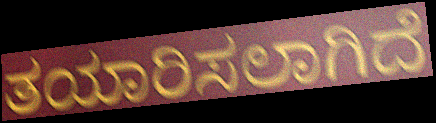
ತಯಾರಿಸಲಾಗಿದೆ